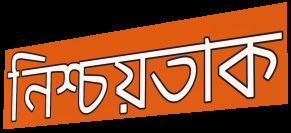
নিশ্চয়তাক